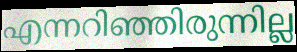
എന്നറിഞ്ഞിരുന്നില്ല